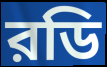
রডি